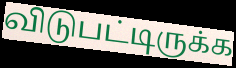
விடுபட்டிருக்க